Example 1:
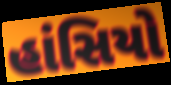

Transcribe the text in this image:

હાંસિયો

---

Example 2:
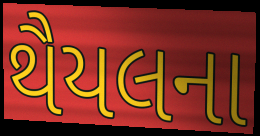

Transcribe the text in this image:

થૈયલના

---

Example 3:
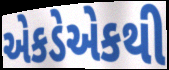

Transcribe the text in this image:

એકડેએકથી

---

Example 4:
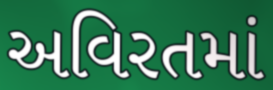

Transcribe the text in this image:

અવિરતમાં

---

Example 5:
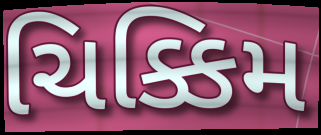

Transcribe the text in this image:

ચિક્કિમ